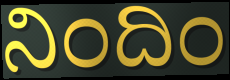
ನಿಂದಿಂ